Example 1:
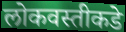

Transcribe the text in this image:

लोकवस्तीकडे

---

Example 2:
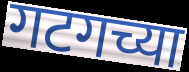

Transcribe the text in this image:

गटगच्या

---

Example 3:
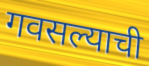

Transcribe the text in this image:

गवसल्याची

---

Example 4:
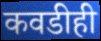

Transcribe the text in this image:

कवडीही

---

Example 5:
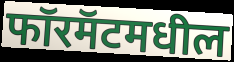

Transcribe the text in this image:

फॉरमॅटमधील